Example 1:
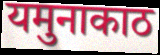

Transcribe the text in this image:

यमुनाकाठ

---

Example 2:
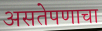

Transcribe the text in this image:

असतेपणाचा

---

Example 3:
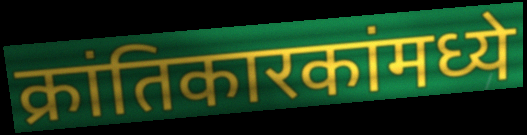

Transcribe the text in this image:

क्रांतिकारकांमध्ये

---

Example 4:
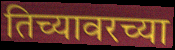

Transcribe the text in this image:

तिच्यावरच्या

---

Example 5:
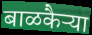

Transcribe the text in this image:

बाळकैऱ्या